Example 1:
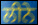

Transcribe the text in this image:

ਲੀਨੇ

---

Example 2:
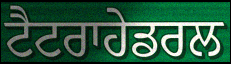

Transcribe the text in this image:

ਟੈਟਰਾਹੇਡਰਲ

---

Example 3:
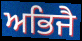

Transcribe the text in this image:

ਅਭਿਜੈ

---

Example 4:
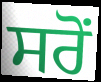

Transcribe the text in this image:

ਸਰੋਂ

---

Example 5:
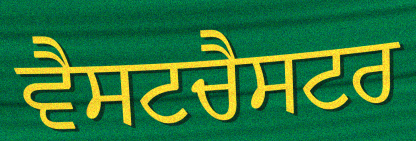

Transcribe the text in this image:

ਵੈਸਟਚੈਸਟਰ